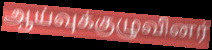
ஆய்வுக்குழுவினர்